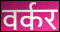
वर्कर